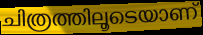
ചിത്രത്തിലൂടെയാണ്